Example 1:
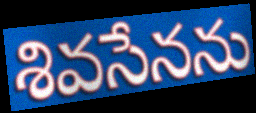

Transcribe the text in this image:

శివసేనను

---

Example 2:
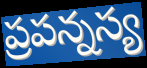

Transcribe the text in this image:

ప్రపన్నస్య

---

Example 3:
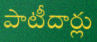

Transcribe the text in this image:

పాటీదార్లు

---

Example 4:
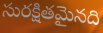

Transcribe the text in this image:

సురక్షితమైనది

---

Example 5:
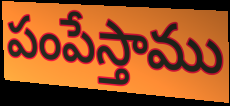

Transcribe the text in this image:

పంపేస్తాము